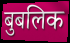
बुबलिक